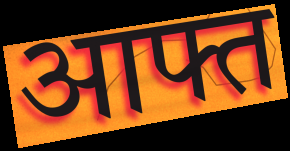
आफ्त